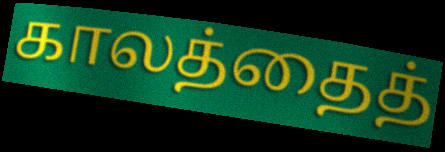
காலத்தைத்